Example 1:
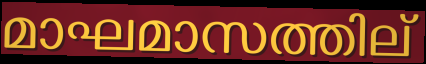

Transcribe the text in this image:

മാഘമാസത്തില്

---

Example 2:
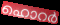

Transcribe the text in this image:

ഹൊറർ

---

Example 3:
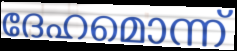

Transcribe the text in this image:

ദേഹമൊന്ന്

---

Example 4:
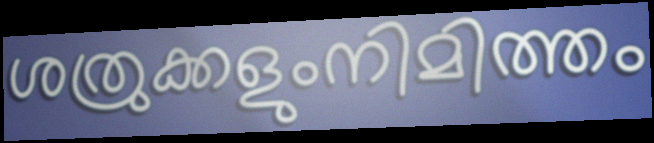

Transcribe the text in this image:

ശത്രുക്കളുംനിമിത്തം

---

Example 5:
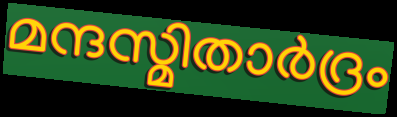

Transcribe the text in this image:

മന്ദസ്മിതാർദ്രം